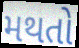
મથતો